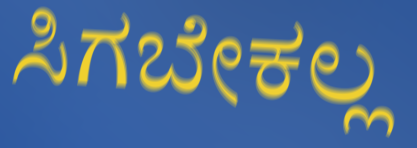
ಸಿಗಬೇಕಲ್ಲ